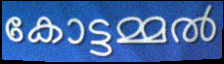
കോട്ടമ്മൽ